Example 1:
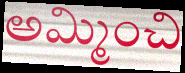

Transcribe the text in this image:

అమ్మించి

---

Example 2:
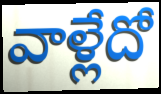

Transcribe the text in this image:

వాళ్లేదో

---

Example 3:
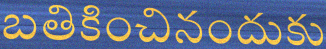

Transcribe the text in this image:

బతికించినందుకు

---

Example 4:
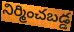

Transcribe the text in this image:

నిర్మించబడ్డ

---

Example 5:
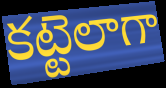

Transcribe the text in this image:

కట్టెలాగా